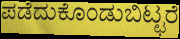
ಪಡೆದುಕೊಂಡುಬಿಟ್ಟರೆ